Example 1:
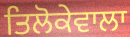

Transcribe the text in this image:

ਤਿਲੋਕੇਵਾਲਾ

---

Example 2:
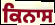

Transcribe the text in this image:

ਕਿਨਾਸ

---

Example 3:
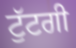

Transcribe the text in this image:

ਟੁੱਟਗੀ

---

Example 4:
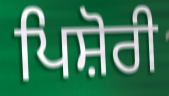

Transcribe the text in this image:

ਪਿਸ਼ੋਰੀ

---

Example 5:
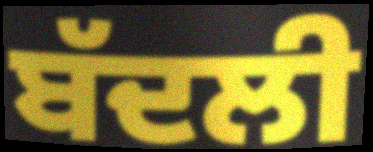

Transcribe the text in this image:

ਬੱਦਲੀ